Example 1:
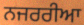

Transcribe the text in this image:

ਨਜਰਰੀਆ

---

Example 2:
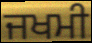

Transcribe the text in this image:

ਜਖਮੀ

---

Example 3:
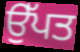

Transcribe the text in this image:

ਉੱਪਤ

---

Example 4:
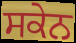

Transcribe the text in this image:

ਸਕੇਨ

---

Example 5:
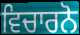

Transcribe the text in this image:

ਵਿਚਾਰਨੋ